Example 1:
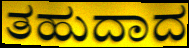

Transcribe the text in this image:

ತಹುದಾದ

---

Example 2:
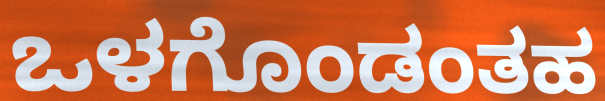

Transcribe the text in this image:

ಒಳಗೊಂಡಂತಹ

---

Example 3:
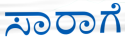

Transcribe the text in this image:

ಸಾರಾಗೆ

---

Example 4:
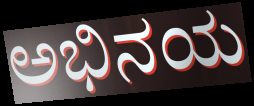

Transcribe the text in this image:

ಅಭಿನಯ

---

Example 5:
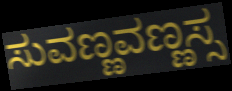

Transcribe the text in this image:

ಸುವಣ್ಣವಣ್ಣಸ್ಸ